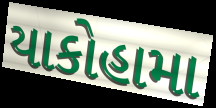
યાકોહામા